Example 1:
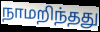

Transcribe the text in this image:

நாமறிந்தது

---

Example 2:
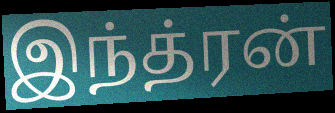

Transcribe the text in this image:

இந்த்ரன்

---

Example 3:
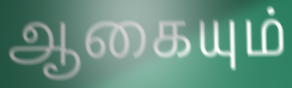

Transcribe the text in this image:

ஆகையும்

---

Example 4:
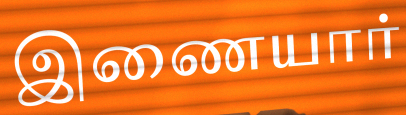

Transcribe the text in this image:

இணையார்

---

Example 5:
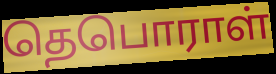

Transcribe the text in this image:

தெபொராள்